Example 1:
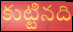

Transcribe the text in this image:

కుట్టినది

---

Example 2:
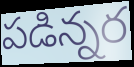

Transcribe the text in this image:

పడిన్నర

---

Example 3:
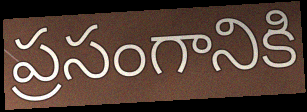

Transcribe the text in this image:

ప్రసంగానికి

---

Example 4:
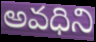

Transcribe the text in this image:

అవధిని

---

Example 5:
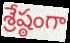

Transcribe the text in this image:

శ్రేష్ఠంగా